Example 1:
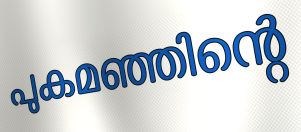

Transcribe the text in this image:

പുകമഞ്ഞിന്റെ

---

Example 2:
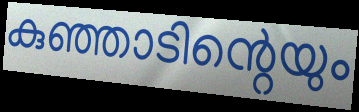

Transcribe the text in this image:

കുഞ്ഞാടിന്റെയും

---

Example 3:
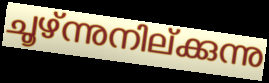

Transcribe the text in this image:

ചൂഴ്ന്നുനില്ക്കുന്നു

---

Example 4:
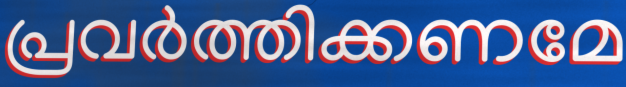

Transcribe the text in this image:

പ്രവർത്തിക്കണമേ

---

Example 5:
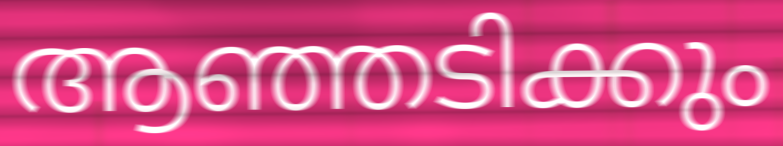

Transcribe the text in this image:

ആഞ്ഞടിക്കും